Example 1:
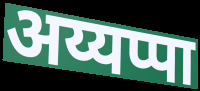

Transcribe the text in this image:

अय्यप्पा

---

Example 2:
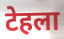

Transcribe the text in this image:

टेहला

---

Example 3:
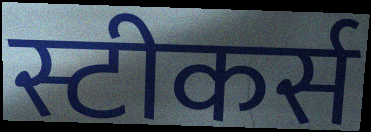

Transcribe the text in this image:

स्टीकर्स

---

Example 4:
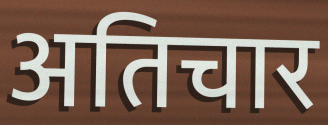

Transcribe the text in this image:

अतिचार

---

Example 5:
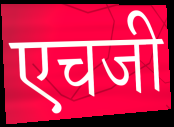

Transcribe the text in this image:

एचजी